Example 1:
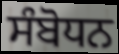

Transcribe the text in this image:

ਸੰਬੋਧਨ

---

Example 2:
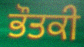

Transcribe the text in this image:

ਭੌਤਕੀ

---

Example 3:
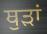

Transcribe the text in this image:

ਥੁੜਾਂ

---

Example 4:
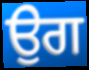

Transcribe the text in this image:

ਉਗ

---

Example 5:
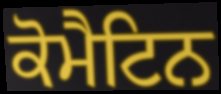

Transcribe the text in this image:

ਕੋਮੈਟਿਨ